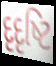
દૃદૃષ્ટિ